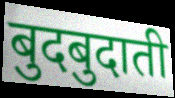
बुदबुदाती